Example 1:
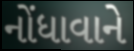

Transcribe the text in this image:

નોંધાવાને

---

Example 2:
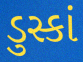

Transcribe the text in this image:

ડુસ્કાં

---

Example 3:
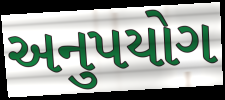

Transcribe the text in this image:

અનુપયોગ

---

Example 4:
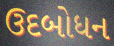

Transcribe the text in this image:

ઉદબોધન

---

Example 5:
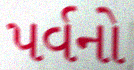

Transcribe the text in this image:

પર્વનો